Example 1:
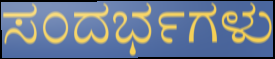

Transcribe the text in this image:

ಸಂದರ್ಭಗಳು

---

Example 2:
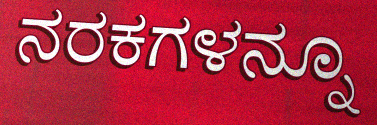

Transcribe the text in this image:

ನರಕಗಳನ್ನೂ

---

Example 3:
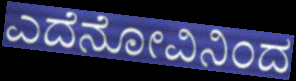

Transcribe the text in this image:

ಎದೆನೋವಿನಿಂದ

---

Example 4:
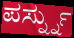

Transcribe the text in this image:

ಪರ್ಸ್ನ್ನು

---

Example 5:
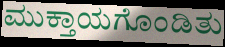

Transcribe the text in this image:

ಮುಕ್ತಾಯಗೊಂಡಿತು